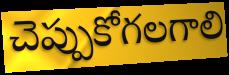
చెప్పుకోగలగాలి